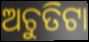
ଅଚୁତିଟା